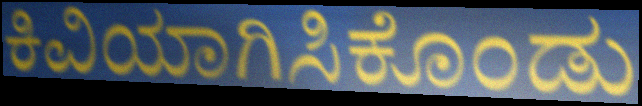
ಕಿವಿಯಾಗಿಸಿಕೊಂಡು